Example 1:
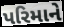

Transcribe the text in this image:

પરિમાને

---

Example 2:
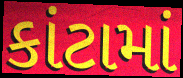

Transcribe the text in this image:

કાંટામાં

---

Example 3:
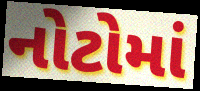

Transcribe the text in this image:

નોટોમાં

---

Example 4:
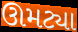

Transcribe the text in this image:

ઊમટ્યા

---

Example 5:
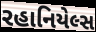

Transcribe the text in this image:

રહાનિયેલ્સ